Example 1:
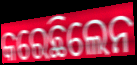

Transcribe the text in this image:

କରେଛିଲେନ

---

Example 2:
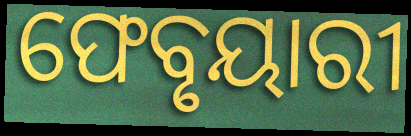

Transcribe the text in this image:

ଫେବୃୟାରୀ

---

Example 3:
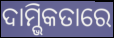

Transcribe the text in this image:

ଦାମ୍ଭିକତାରେ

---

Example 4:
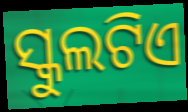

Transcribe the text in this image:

ସ୍କୁଲଟିଏ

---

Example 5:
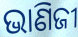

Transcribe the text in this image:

ଭାଣିଜୀ